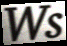
Ws